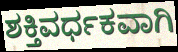
ಶಕ್ತಿವರ್ಧಕವಾಗಿ